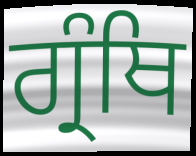
ਗ੍ਰੰਥਿ